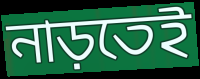
নাড়তেই